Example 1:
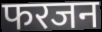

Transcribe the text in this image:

फरजन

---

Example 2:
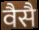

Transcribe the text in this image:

वैसै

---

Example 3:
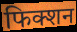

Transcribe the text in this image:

फिक्शन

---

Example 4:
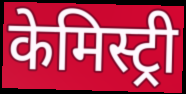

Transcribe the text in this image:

केमिस्ट्री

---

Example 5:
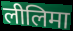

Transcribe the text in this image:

लीलिमा